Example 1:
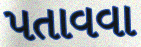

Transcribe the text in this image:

પતાવવા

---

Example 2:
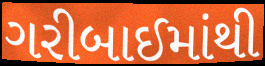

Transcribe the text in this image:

ગરીબાઈમાંથી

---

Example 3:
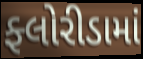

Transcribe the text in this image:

ફ્લોરીડામાં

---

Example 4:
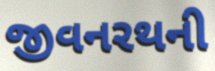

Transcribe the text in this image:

જીવનરથની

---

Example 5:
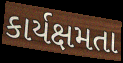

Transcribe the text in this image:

કાર્યક્ષમતા